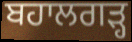
ਬਹਾਲਗੜ੍ਹ